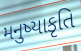
મનુષ્યાકૃતિ